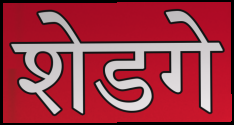
शेडगे